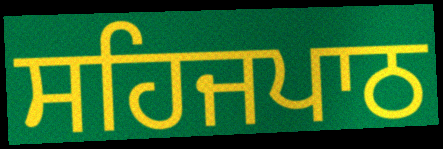
ਸਹਿਜਪਾਠ